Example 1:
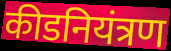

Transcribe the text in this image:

कीडनियंत्रण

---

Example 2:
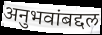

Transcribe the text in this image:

अनुभवांबद्दल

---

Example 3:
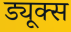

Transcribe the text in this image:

ड्यूक्स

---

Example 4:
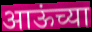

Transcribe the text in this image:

आऊंच्या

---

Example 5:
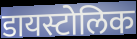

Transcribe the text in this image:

डायस्टोलिक